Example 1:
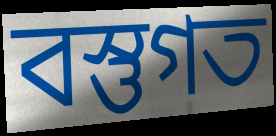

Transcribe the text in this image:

বস্তুগত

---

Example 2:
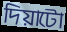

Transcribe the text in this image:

দিয়াটো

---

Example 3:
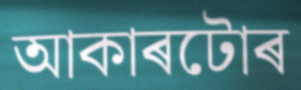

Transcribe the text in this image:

আকাৰটোৰ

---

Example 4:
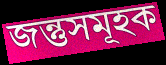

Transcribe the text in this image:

জন্তুসমূহক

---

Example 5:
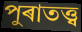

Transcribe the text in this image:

পুৰাতত্ত্ব